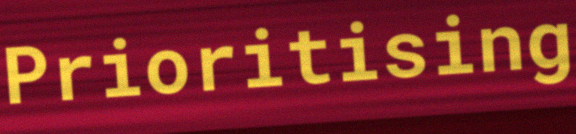
Prioritising